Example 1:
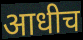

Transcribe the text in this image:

आधीच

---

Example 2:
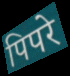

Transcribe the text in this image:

पिपरे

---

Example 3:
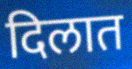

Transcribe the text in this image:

दिलात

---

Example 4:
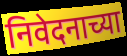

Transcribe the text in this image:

निवेदनाच्या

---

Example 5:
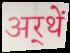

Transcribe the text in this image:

अर्थें